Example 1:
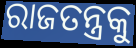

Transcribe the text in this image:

ରାଜତନ୍ତ୍ରକୁ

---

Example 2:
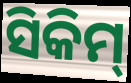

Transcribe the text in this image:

ସିକିମ୍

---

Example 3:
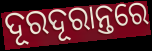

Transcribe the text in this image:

ଦୂରଦୂରାନ୍ତରେ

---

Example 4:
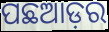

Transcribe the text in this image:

ପଛଆଡ଼ର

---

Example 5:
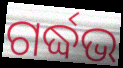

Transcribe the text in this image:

ଗର୍ଦ୍ଧଭ